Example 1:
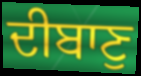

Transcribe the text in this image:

ਦੀਬਾਣੁ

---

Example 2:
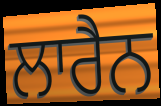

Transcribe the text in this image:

ਲਾਰੈਨ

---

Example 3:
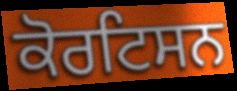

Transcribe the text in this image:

ਕੋਰਟਿਸਨ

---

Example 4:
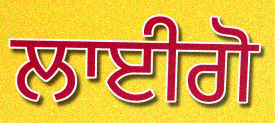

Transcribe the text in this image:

ਲਾਈਗੋ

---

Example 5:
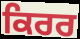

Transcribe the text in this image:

ਕਿਰਰ